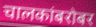
चालकांबरोबर